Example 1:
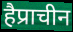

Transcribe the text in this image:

हैप्राचीन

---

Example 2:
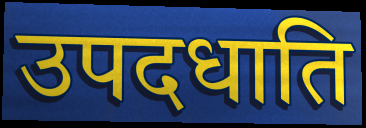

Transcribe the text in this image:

उपदधाति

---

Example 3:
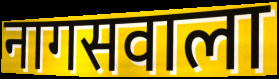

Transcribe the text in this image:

नागसवाला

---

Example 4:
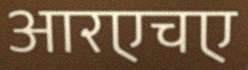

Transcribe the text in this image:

आरएचए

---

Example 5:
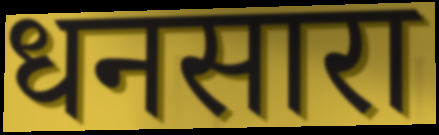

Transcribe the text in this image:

धनसारा